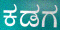
ಕಡಗ